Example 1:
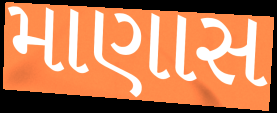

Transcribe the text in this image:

માણાસ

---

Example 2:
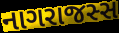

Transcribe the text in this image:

નાગરાજસ્સ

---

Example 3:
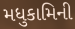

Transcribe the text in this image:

મધુકામિની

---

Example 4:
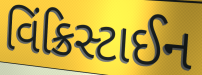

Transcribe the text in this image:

વિંક્રિસ્ટાઈન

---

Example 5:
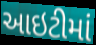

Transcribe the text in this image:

આઇટીમાં